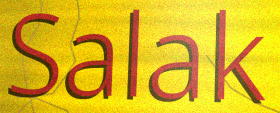
Salak